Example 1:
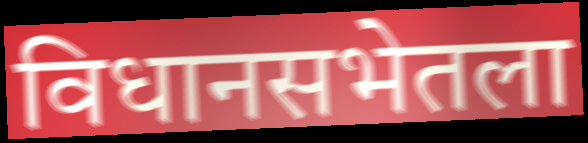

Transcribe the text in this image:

विधानसभेतला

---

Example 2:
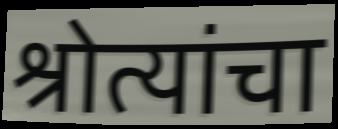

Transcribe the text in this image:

श्रोत्यांचा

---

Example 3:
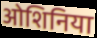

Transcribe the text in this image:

ओशिनिया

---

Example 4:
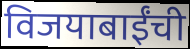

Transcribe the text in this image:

विजयाबाईंची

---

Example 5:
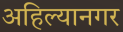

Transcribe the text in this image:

अहिल्यानगर